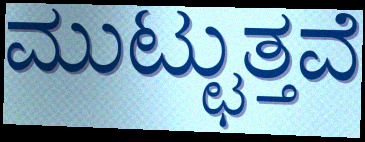
ಮುಟ್ಟುತ್ತವೆ